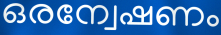
ഒരന്വേഷണം